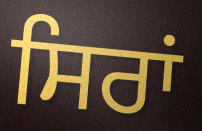
ਸਿਰਾਂ